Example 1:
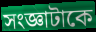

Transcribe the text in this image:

সংজ্ঞাটাকে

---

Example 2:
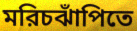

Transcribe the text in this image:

মরিচঝাঁপিতে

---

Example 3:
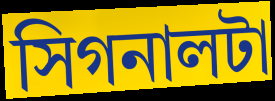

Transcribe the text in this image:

সিগনালটা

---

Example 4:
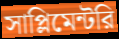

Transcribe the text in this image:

সাপ্লিমেন্টরি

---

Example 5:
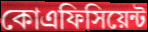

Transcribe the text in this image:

কোএফিসিয়েন্ট